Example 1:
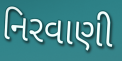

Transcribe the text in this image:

નિરવાણી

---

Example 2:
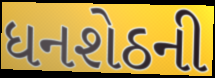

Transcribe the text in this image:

ધનશેઠની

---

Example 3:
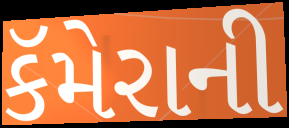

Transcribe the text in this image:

કૅમેરાની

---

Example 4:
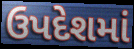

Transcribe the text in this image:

ઉપદેશમાં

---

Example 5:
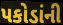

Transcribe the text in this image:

પકોડાંની